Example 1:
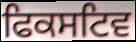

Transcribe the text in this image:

ਫਿਕਸਟਿਵ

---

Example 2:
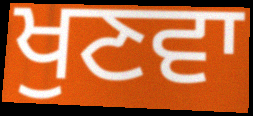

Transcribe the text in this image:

ਖੁਣਵਾ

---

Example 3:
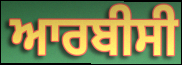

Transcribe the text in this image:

ਆਰਬੀਸੀ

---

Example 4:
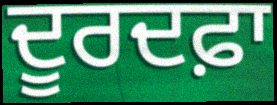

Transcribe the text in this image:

ਦੂਰਦਫ਼ਾ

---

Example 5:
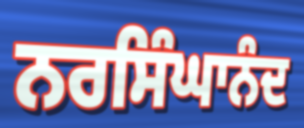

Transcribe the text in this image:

ਨਰਸਿੰਘਾਨੰਦ